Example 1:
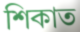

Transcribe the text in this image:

শিকাত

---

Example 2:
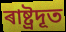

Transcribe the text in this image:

ৰাষ্ট্ৰদূত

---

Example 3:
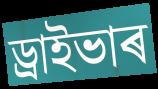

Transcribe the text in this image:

ড্ৰাইভাৰ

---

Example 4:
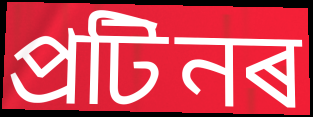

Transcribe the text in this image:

প্ৰটিনৰ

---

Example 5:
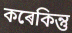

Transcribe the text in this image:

কৰেকিন্তু